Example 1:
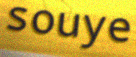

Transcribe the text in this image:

souye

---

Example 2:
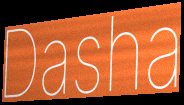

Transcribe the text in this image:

Dasha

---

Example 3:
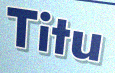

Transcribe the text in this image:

Titu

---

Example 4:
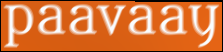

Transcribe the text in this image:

paavaay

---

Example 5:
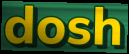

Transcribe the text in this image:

dosh